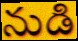
నుడి